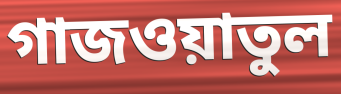
গাজওয়াতুল